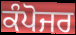
ਕੰਪੋਜਰ